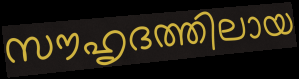
സൗഹൃദത്തിലായ